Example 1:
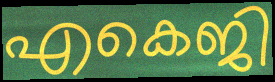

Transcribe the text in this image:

എകെജി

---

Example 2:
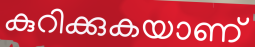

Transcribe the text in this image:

കുറിക്കുകയാണ്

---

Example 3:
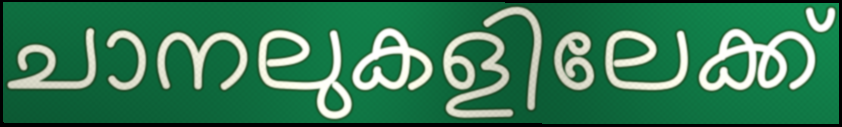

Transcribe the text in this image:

ചാനലുകളിലേക്ക്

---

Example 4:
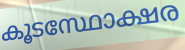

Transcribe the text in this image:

കൂടസ്ഥോക്ഷര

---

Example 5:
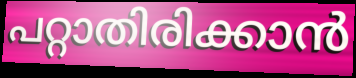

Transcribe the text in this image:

പറ്റാതിരിക്കാൻ